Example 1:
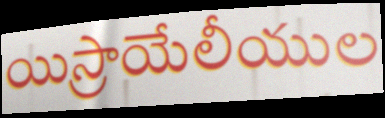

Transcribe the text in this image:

యిస్రాయేలీయుల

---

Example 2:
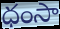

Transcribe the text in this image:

ధంసా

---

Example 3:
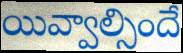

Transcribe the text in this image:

యివ్వాల్సిందే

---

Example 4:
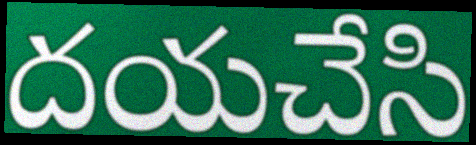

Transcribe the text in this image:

దయచేసి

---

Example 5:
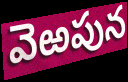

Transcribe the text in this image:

వెఱపున